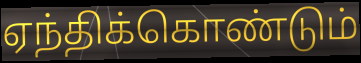
ஏந்திக்கொண்டும்